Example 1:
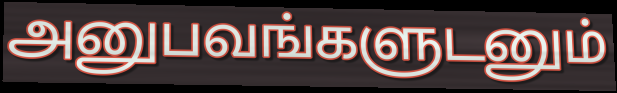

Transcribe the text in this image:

அனுபவங்களுடனும்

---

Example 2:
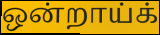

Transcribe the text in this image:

ஒன்றாய்க்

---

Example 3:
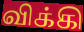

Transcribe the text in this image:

விக்கி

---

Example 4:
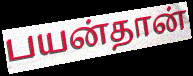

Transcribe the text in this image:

பயன்தான்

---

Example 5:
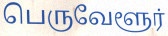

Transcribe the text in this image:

பெருவேளூர்